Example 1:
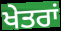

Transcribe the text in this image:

ਖੇਤਰਾਂ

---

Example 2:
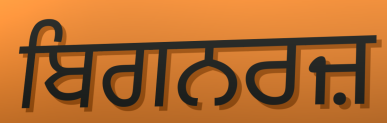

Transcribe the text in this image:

ਬਿਗਨਰਜ਼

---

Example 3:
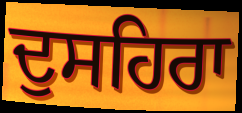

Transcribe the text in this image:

ਦੁਸਹਿਰਾ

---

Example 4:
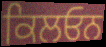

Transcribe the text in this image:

ਕਿਲਓਨ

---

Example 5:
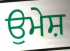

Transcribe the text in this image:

ਉਮੇਸ਼